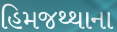
હિમજથ્થાના